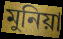
মুনিয়া